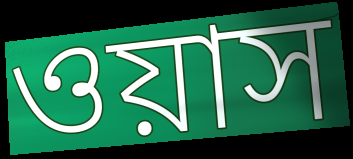
ওয়াস